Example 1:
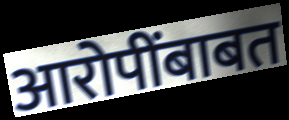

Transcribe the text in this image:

आरोपींबाबत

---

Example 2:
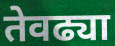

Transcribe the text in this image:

तेवढ्या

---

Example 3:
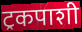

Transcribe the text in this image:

ट्रकपाशी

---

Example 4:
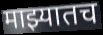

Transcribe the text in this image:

माझ्यातच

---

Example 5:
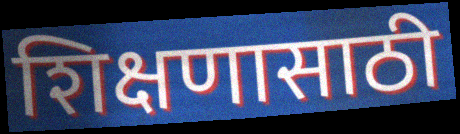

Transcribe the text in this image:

शिक्षणासाठी